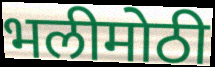
भलीमोठी